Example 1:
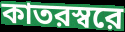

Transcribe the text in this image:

কাতরস্বরে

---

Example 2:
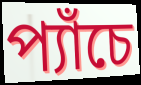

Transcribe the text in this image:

প্যাঁচে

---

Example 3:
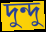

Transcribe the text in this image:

দুন্দু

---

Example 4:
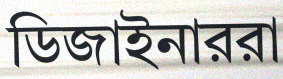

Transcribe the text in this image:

ডিজাইনাররা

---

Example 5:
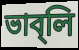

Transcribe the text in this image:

ভাব্‌লি